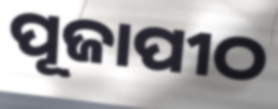
ପୂଜାପୀଠ